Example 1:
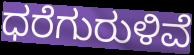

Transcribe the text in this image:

ಧರೆಗುರುಳಿವೆ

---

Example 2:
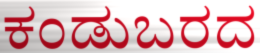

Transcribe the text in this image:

ಕಂಡುಬರದ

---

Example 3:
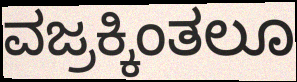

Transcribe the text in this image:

ವಜ್ರಕ್ಕಿಂತಲೂ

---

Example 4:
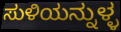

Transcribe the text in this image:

ಸುಳಿಯನ್ನುಳ್ಳ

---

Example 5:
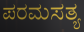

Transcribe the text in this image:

ಪರಮಸತ್ಯ